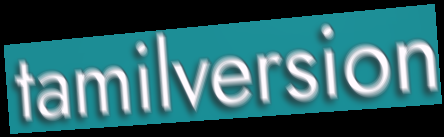
tamilversion